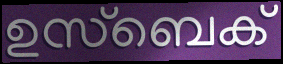
ഉസ്ബെക്